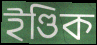
ইণ্ডিক